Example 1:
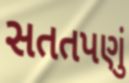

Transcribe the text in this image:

સતતપણું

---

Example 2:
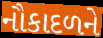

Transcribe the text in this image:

નૌકાદળને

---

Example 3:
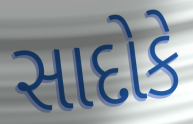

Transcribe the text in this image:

સાદોકે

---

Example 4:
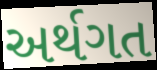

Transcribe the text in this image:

અર્થગત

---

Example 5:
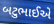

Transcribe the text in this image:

બટુભાઈએ